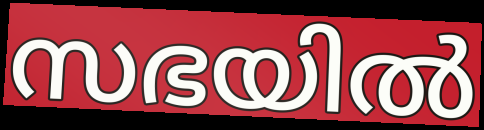
സഭയിൽ